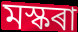
মস্কৰা